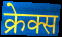
क्रेक्स